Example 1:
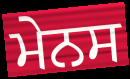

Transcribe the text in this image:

ਮੇਨਸ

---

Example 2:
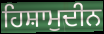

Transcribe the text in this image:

ਹਿਸ਼ਾਮੁਦੀਨ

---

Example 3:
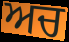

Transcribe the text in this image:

ਅਚ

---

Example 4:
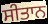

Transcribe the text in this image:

ਸੀਤਾਨ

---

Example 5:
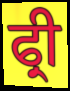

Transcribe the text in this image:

ਫ੍ਰੀ